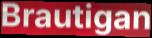
Brautigan